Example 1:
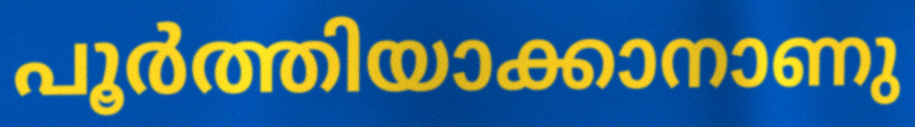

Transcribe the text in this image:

പൂർത്തിയാക്കാനാണു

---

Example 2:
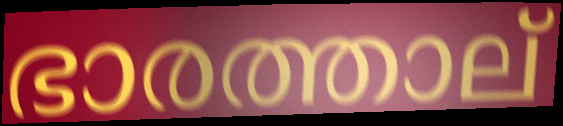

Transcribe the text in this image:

ഭാരത്താല്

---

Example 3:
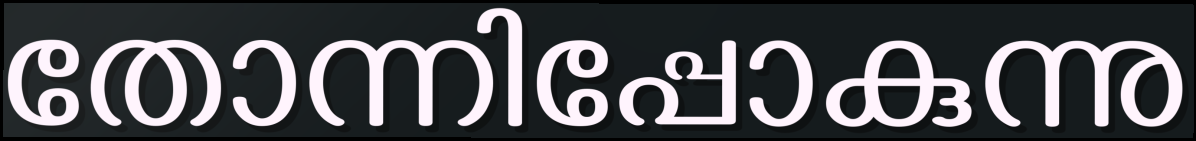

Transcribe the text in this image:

തോന്നിപ്പോകുന്നു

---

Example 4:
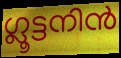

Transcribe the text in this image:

ഗ്ലൂട്ടനിൻ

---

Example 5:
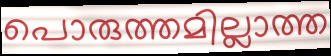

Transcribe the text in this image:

പൊരുത്തമില്ലാത്ത